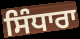
ਸਿੰਧਾਰਾ